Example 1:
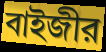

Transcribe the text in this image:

বাইজীর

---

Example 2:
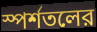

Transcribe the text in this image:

স্পর্শতলের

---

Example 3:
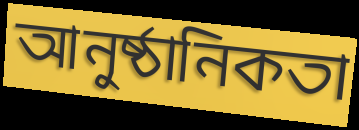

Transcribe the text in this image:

আনুষ্ঠানিকতা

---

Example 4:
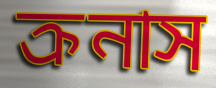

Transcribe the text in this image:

ক্রনাস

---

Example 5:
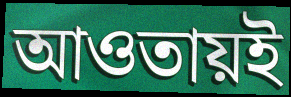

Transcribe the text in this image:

আওতায়ই